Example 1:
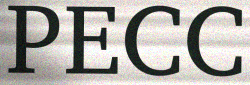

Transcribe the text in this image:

PECC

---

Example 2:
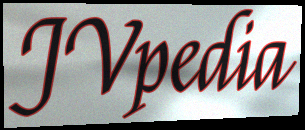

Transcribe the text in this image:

JVpedia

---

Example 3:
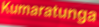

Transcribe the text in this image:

Kumaratunga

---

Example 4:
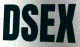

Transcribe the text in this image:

DSEX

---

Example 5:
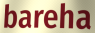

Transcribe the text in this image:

bareha